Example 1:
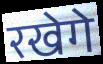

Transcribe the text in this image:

रखेगे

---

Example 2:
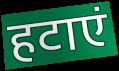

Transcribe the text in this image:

हटाएं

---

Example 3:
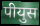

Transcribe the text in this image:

पीयुस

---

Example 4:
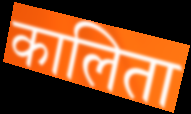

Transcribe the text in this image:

कालिता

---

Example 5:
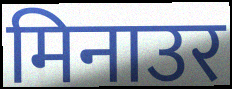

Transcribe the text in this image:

मिनाउर